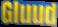
Gluud